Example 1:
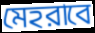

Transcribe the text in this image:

মেহরাবে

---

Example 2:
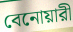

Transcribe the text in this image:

বেনোয়ারী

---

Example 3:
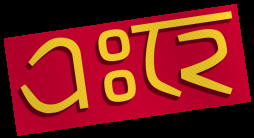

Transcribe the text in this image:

এঃহে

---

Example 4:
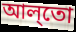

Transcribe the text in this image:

আল্‌তো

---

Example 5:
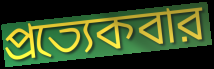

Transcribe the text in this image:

প্রত্যেকবার